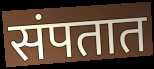
संपतात